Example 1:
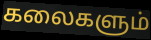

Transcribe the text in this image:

கலைகளும்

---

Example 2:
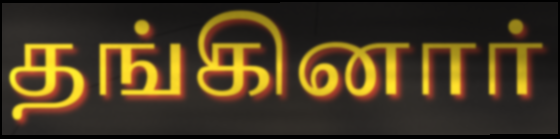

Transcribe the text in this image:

தங்கினார்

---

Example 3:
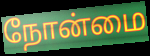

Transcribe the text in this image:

நோன்மை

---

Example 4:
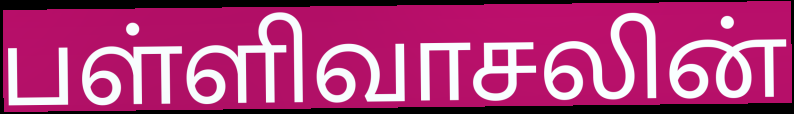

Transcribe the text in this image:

பள்ளிவாசலின்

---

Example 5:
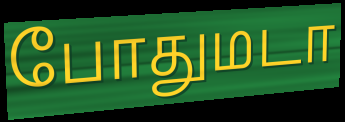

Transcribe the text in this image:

போதுமடா